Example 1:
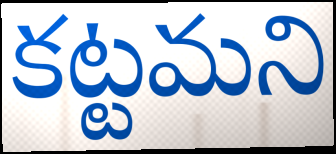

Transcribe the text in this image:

కట్టమని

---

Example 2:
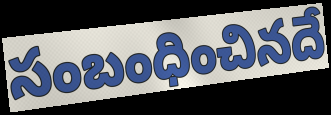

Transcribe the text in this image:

సంబంధించినదే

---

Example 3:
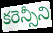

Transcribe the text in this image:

కరెన్సీని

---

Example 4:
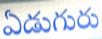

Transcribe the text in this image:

ఏడుగురు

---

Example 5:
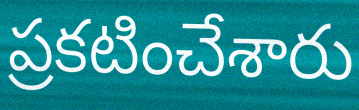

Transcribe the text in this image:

ప్రకటించేశారు